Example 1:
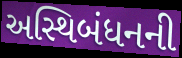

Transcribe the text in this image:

અસ્થિબંધનની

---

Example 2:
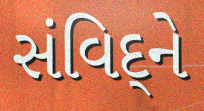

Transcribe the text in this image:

સંવિદ્‌ને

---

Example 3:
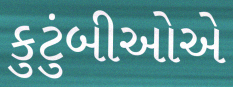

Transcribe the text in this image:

કુટુંબીઓએ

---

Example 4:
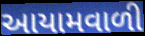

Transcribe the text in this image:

આયામવાળી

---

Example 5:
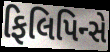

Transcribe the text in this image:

ફિલિપિન્સે